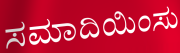
ಸಮಾದಿಯಿಂಸು